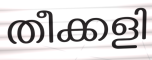
തീക്കളി